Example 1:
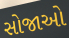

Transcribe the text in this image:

સોજાઓ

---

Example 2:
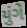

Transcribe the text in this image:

યુંગે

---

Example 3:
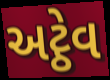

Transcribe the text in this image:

અટ્ઠેવ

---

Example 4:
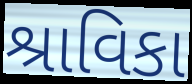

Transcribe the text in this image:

શ્રાવિકા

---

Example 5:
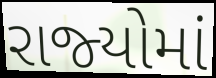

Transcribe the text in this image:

રાજ્‍યોમાં